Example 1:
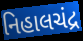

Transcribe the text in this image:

નિહાલચંદ્ર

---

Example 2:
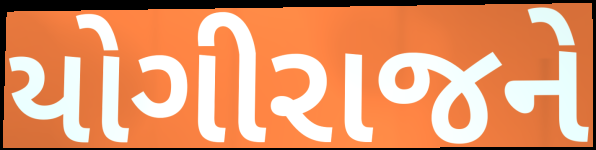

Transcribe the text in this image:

યોગીરાજને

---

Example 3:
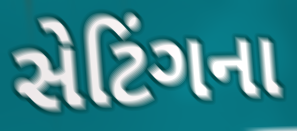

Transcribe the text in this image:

સેટિંગના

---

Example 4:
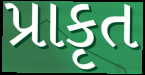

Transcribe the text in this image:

પ્રાકૃત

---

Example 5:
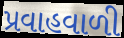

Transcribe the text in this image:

પ્રવાહવાળી